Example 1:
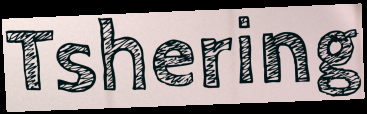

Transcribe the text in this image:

Tshering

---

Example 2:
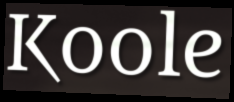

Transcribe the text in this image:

Koole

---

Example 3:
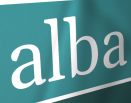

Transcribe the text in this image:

alba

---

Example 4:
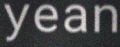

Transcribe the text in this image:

yean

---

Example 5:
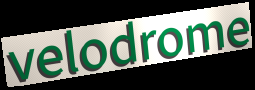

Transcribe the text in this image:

velodrome